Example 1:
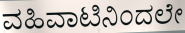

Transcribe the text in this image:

ವಹಿವಾಟಿನಿಂದಲೇ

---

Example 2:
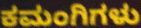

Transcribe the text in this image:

ಕಮಂಗಿಗಳು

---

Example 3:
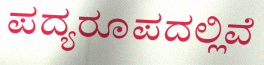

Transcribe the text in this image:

ಪದ್ಯರೂಪದಲ್ಲಿವೆ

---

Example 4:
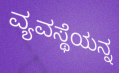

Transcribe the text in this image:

ವ್ಯವಸ್ಥೆಯನ್ನ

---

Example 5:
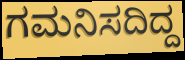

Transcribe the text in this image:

ಗಮನಿಸದಿದ್ದ